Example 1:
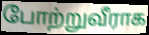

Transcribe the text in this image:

போற்றுவீராக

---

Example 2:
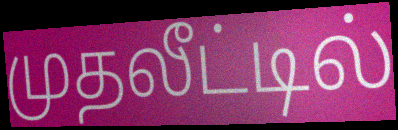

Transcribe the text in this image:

முதலீட்டில்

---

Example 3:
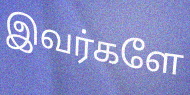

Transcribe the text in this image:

இவர்களே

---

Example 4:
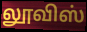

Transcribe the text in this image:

லூவிஸ்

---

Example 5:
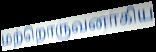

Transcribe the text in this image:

மற்றொருவனாகிய